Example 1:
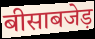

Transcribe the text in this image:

बीसाबजेड़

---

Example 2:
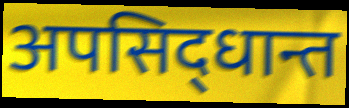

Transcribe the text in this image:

अपसिद्धान्त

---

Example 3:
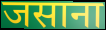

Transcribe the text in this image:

जसाना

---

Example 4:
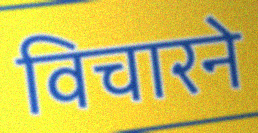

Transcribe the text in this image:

विचारने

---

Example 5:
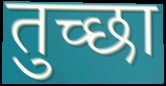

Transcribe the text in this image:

तुच्छा